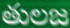
తులజ